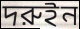
দরুইন